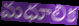
మధూలిక